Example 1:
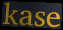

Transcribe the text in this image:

kase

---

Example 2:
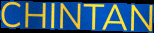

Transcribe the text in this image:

CHINTAN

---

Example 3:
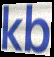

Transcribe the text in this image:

kb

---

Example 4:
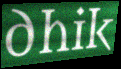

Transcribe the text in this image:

dhik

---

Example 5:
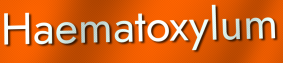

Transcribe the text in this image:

Haematoxylum